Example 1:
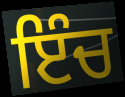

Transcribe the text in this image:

ਇੰਚ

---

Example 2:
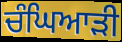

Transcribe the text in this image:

ਚੰਘਿਆੜੀ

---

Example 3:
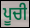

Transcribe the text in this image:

ਪੂਚੀ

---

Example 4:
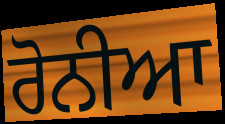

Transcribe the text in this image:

ਰੋਨੀਆ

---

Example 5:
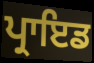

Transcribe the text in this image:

ਪ੍ਰਾਇਡ